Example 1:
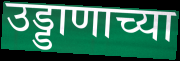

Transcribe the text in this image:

उड्डाणाच्या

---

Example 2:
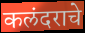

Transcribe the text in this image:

कलंदराचे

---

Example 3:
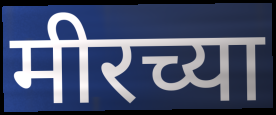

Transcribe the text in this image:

मीरच्या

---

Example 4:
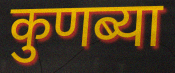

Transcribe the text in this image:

कुणब्या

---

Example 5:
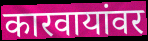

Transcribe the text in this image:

कारवायांवर